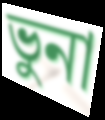
ভুনা